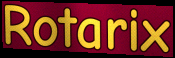
Rotarix